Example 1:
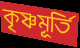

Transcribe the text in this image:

কৃষ্ণমূর্তি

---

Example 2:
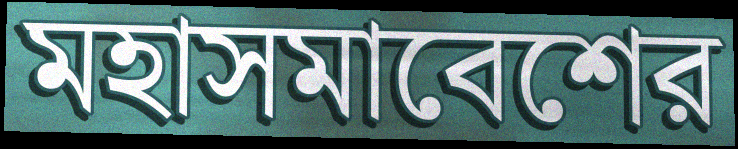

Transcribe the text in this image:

মহাসমাবেশের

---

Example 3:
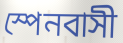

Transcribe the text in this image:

স্পেনবাসী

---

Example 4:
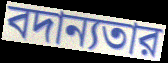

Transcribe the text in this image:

বদান্যতার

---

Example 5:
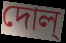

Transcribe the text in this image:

দোল্